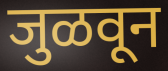
जुळवून